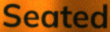
Seated